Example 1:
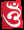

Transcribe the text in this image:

ঔঁ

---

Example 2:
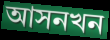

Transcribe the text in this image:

আসনখন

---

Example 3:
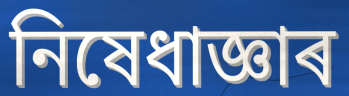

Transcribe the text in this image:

নিষেধাজ্ঞাৰ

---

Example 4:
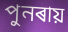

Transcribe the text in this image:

পুনৰায়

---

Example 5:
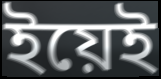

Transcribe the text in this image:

ইয়েই